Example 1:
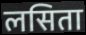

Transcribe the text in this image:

लसिता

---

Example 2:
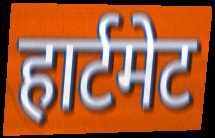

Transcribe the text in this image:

हार्टमेट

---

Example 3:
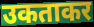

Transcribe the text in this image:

उकताकर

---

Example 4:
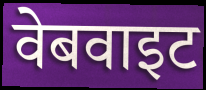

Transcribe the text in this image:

वेबवाइट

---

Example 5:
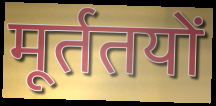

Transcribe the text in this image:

मूर्ततयों